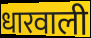
धारवाली